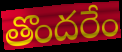
తొందరేం